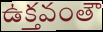
ఉక్తవంతౌ